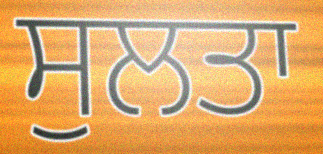
ਸੁਲਤਾ